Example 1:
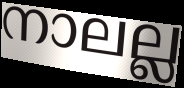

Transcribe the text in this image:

നാലല്ല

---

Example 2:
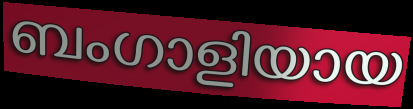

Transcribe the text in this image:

ബംഗാളിയായ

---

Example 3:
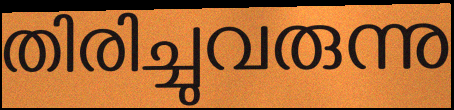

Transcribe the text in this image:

തിരിച്ചുവരുന്നു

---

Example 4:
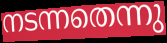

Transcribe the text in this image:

നടന്നതെന്നു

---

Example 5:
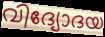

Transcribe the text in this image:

വിദ്യോദയ